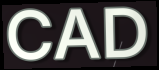
CAD